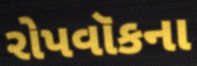
રોપવૉકના